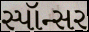
સ્પૉન્સર